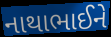
નાથાભાઈને